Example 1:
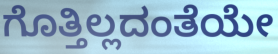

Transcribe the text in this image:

ಗೊತ್ತಿಲ್ಲದಂತೆಯೇ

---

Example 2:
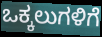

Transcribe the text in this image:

ಒಕ್ಕಲುಗಳಿಗೆ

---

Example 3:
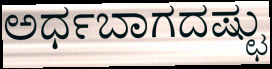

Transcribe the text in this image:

ಅರ್ಧಬಾಗದಷ್ಟು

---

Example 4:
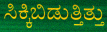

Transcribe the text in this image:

ಸಿಕ್ಕಿಬಿಡುತ್ತಿತ್ತು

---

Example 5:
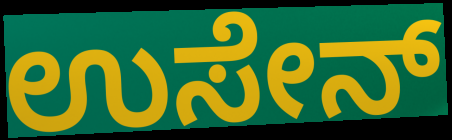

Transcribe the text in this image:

ಉಸೇನ್